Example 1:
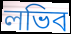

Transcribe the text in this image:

লভিব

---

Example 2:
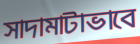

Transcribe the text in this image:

সাদামাটাভাবে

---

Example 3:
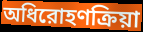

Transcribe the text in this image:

অধিরোহণক্রিয়া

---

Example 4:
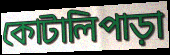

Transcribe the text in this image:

কোটালিপাড়া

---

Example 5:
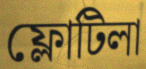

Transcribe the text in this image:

ফ্লোটিলা